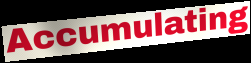
Accumulating